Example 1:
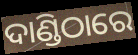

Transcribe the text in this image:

ଦାଣ୍ଡିଠାରେ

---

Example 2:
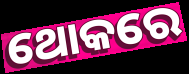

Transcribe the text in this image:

ଥୋକରେ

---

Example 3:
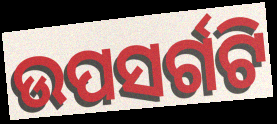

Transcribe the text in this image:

ଉପସର୍ଗଟି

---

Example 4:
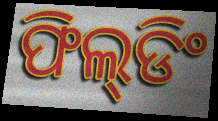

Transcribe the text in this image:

ଫିଲ୍‌ଡିଂ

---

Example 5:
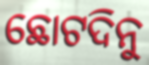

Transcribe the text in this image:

ଛୋଟଦିନୁ